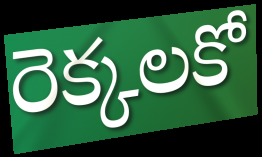
రెక్కలకో